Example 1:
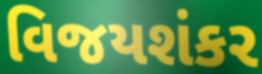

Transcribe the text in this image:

વિજયશંકર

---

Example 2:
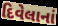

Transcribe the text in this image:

દિવેલાનાં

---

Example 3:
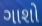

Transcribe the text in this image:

ગાશો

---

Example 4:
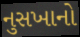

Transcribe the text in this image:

નુસખાનો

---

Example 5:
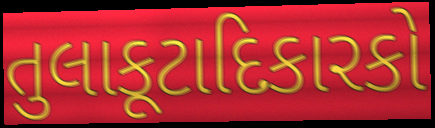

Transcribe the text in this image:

તુલાકૂટાદિકારકો